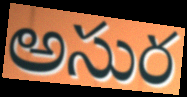
అసుర